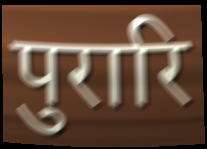
पुरारि